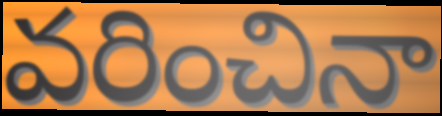
వరించినా